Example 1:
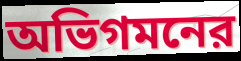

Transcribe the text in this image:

অভিগমনের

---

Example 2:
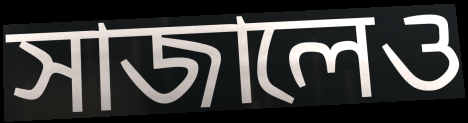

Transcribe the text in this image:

সাজালেও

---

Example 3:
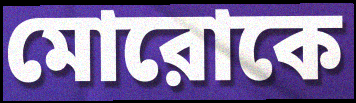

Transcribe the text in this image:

মোরোকে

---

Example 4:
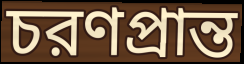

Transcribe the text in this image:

চরণপ্রান্ত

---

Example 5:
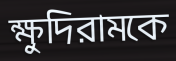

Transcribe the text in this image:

ক্ষুদিরামকে